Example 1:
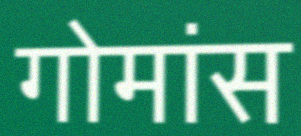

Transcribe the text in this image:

गोमांस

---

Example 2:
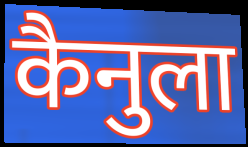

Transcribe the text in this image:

कैनुला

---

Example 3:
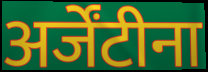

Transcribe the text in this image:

अर्जेंटीना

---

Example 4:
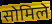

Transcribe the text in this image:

सोमिले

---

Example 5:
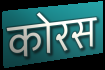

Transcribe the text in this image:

कोरस